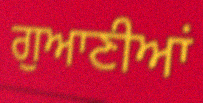
ਗੁਆਣੀਆਂ